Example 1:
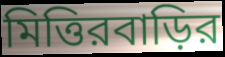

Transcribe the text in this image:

মিত্তিরবাড়ির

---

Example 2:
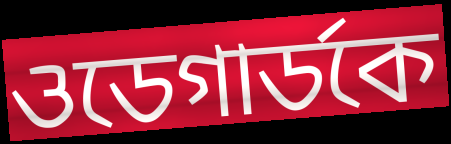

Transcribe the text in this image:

ওডেগার্ডকে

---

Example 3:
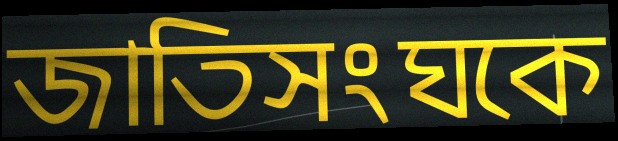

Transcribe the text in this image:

জাতিসংঘকে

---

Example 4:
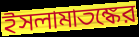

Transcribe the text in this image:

ইসলামাতঙ্কের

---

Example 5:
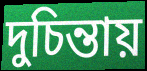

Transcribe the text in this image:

দুচিন্তায়